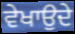
ਵੇਖਾਉਦੇ